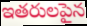
ఇతరులపైన